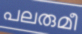
പലരുമീ